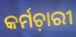
କର୍ମଚ଼ାରୀ